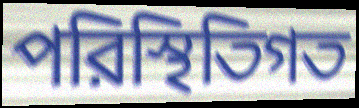
পরিস্থিতিগত